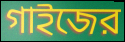
গাইজের